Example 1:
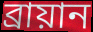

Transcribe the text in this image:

ব্রায়ান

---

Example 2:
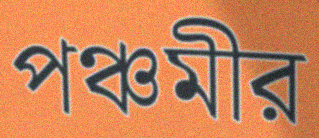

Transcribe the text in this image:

পঞ্চমীর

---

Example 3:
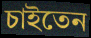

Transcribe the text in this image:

চাইতেন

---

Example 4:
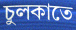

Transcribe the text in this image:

চুলকাতে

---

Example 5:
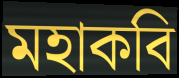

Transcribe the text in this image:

মহাকবি